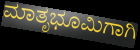
ಮಾತೃಭೂಮಿಗಾಗಿ